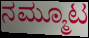
ನಮ್ಮೂಟ